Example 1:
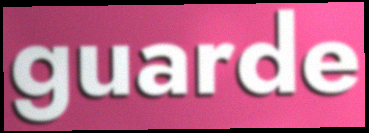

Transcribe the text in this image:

guarde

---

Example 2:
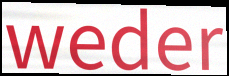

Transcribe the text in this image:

weder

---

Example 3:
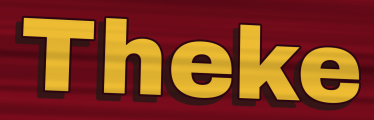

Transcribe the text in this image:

Theke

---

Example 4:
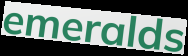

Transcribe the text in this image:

emeralds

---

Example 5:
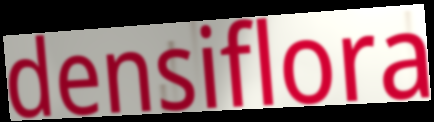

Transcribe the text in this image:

densiflora